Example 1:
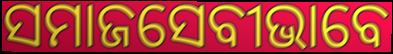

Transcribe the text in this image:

ସମାଜସେବୀଭାବେ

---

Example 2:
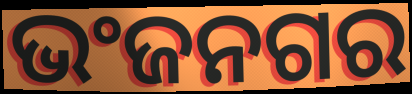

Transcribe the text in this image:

ଭଂଜନଗର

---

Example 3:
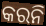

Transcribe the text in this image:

କରନି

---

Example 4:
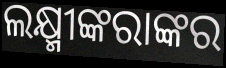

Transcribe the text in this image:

ଲକ୍ଷ୍ମୀଙ୍କରାଙ୍କର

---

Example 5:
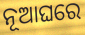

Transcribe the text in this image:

ନୂଆଘରେ